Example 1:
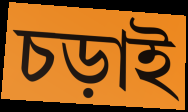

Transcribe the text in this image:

চড়াই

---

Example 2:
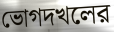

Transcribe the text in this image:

ভোগদখলের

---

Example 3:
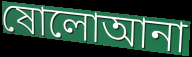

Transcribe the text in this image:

ষোলোআনা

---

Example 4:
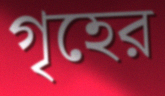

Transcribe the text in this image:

গৃহের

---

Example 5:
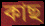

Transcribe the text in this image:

কাছ